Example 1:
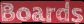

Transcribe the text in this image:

Boards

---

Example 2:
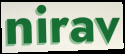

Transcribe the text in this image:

nirav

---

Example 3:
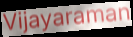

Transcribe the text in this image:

Vijayaraman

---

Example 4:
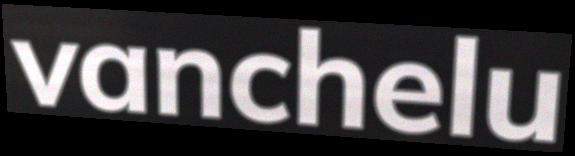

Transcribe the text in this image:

vanchelu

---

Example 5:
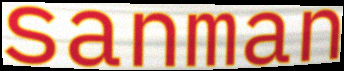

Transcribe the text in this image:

sanman